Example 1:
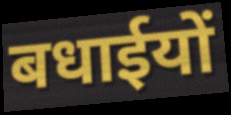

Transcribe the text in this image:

बधाईयों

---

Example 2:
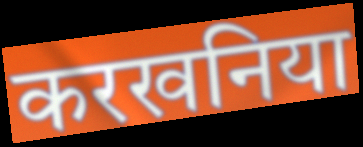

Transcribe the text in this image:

करखनिया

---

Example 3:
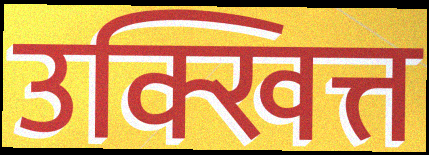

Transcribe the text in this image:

उक्खित्त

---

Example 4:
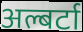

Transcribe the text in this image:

अल्बर्टा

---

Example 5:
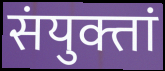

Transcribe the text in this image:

संयुक्तां